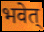
भवेत्